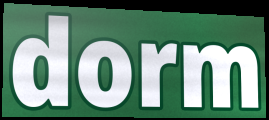
dorm